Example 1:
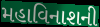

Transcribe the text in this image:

મહાવિનાશની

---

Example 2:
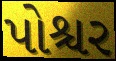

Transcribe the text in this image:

પોશ્ચર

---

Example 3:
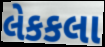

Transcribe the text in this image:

લેકકલા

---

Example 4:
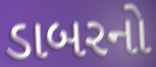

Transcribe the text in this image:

ડાબરનો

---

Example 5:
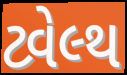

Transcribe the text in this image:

ટ્વેલ્થ